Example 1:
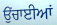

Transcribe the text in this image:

ਉਂਚਾਈਆਂ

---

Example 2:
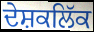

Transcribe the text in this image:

ਦੇਸ਼ਕਲਿੱਕ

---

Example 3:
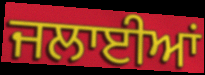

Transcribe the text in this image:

ਜਲਾਈਆਂ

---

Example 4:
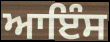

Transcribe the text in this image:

ਆਇੰਸ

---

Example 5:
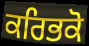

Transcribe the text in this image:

ਕਰਿਭਕੋ